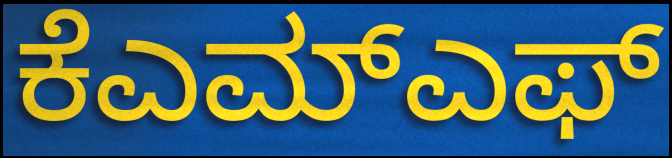
ಕೆಎಮ್ಎಫ್